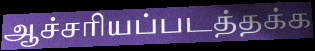
ஆச்சரியப்படத்தக்க